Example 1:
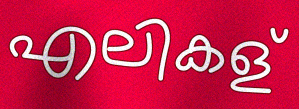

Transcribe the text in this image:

എലികള്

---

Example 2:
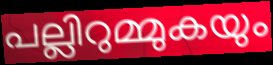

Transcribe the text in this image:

പല്ലിറുമ്മുകയും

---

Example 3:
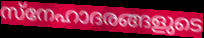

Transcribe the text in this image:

സ്നേഹാദരങ്ങളുടെ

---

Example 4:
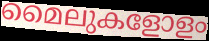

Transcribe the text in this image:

മൈലുകളോളം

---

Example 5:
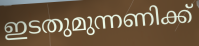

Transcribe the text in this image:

ഇടതുമുന്നണിക്ക്